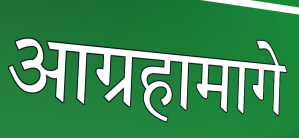
आग्रहामागे